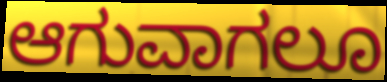
ಆಗುವಾಗಲೂ